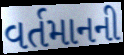
વર્તમાનની